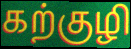
கற்குழி